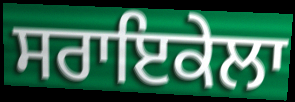
ਸਰਾਇਕੇਲਾ